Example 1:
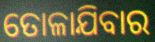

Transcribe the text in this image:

ତୋଳାଯିବାର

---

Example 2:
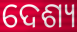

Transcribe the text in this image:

ଦେଶ୍ୟ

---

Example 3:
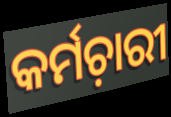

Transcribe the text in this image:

କର୍ମଚ଼ାରୀ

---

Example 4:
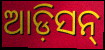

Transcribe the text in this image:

ଆଡ଼ିସନ୍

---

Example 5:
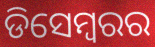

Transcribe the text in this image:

ଡିସେମ୍ୱରର